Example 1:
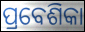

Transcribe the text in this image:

ପ୍ରବେଶିକା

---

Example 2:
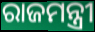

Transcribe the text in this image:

ରାଜମନ୍ତ୍ରୀ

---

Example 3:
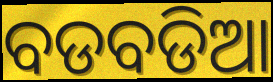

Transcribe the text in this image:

ବଡବଡିଆ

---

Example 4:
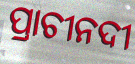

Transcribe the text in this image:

ପ୍ରାଚୀନଦୀ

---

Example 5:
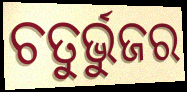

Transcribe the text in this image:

ଚତୁର୍ଭୁଜର